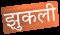
झुकली